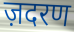
ज़दरण